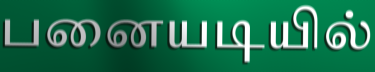
பனையடியில்